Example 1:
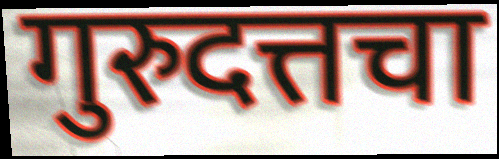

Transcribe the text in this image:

गुरुदत्तचा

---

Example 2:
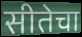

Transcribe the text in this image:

सीतेचा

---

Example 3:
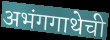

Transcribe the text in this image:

अभंगगाथेची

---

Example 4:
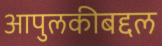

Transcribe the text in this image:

आपुलकीबद्दल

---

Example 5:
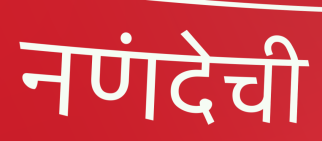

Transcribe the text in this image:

नणंदेची